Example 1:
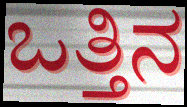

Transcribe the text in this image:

ಒತ್ತಿನ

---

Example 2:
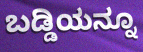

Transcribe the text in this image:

ಬಡ್ಡಿಯನ್ನೂ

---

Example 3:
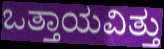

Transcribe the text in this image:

ಒತ್ತಾಯವಿತ್ತು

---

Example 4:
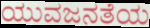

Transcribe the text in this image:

ಯುವಜನತೆಯ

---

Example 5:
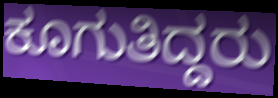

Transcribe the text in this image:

ಕೂಗುತಿದ್ದರು